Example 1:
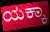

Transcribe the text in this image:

ಯಕ್ಕಾ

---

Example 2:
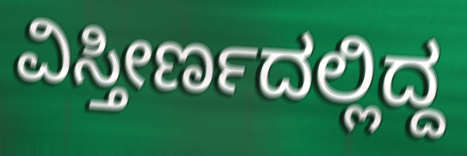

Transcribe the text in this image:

ವಿಸ್ತೀರ್ಣದಲ್ಲಿದ್ದ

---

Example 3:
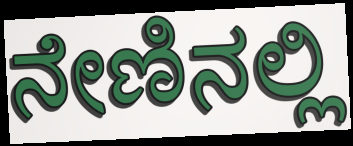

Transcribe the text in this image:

ನೇಣಿನಲ್ಲಿ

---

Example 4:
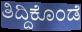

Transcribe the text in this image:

ತಿದ್ದಿಕೊಂಡೆ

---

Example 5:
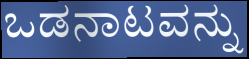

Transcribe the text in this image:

ಒಡನಾಟವನ್ನು